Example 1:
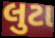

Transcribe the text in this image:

લુટા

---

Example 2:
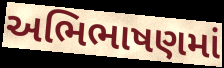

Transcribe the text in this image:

અભિભાષણમાં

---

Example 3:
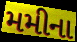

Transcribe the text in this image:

મમીના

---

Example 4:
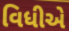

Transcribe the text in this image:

વિધીએ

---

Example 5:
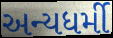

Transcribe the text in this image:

અન્યધર્મી